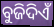
ବୁଜିଦିଏଁ